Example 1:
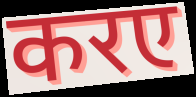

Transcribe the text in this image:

करए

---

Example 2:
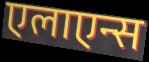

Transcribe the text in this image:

एलाएन्स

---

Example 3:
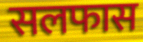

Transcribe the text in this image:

सलफास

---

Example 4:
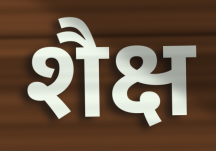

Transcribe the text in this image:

शैक्ष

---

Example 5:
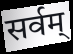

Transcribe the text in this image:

सर्वम्